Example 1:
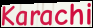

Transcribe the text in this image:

Karachi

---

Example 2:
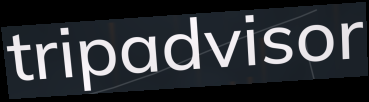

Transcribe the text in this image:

tripadvisor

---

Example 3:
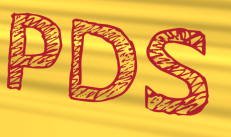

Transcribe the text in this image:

PDS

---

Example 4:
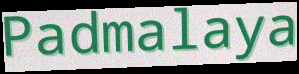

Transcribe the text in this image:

Padmalaya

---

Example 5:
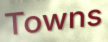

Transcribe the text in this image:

Towns